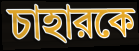
চাহারকে